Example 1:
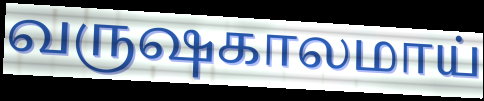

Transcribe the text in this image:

வருஷகாலமாய்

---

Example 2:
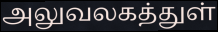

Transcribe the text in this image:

அலுவலகத்துள்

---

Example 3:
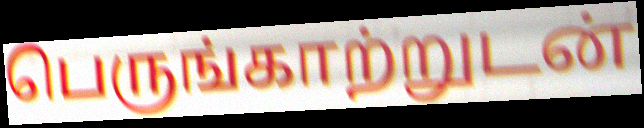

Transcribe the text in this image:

பெருங்காற்றுடன்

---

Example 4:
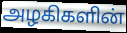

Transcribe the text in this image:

அழகிகளின்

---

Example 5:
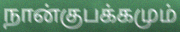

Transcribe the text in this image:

நான்குபக்கமும்